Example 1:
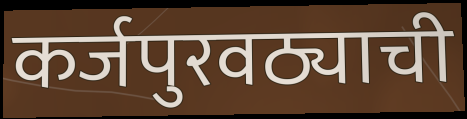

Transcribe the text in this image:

कर्जपुरवठ्याची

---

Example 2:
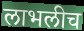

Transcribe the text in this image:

लाभलीच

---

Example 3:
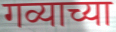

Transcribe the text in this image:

गव्याच्या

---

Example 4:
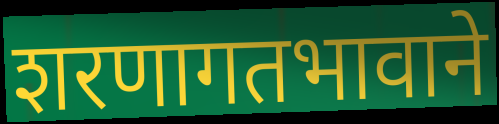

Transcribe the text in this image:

शरणागतभावाने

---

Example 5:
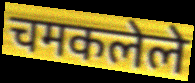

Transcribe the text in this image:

चमकलेले